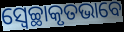
ସ୍ୱେଚ୍ଛାକୃତଭାବେ